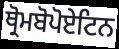
ਥ੍ਰੋਮਬੋਪੋਏਟਿਨ